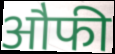
औफी